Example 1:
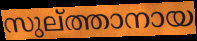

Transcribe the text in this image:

സുല്ത്താനായ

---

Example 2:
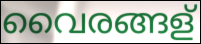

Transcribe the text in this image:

വൈരങ്ങള്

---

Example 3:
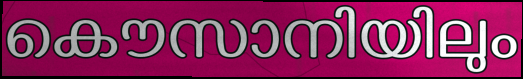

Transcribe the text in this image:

കൌസാനിയിലും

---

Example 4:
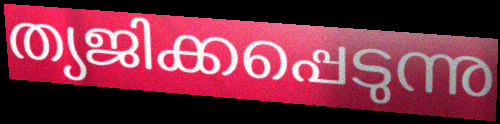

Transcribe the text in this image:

ത്യജിക്കപ്പെടുന്നു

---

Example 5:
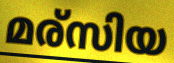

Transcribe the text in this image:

മര്സിയ